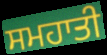
ਸਮਹਾਤੀ